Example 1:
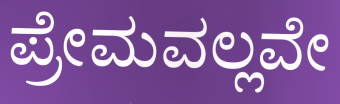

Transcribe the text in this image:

ಪ್ರೇಮವಲ್ಲವೇ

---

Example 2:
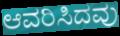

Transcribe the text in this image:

ಆವರಿಸಿದವು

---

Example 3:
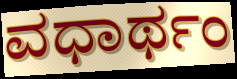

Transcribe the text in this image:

ವಧಾರ್ಥಂ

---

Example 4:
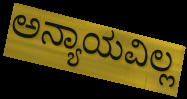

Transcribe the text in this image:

ಅನ್ಯಾಯವಿಲ್ಲ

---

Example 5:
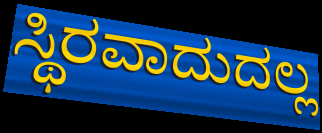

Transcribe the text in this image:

ಸ್ಥಿರವಾದುದಲ್ಲ